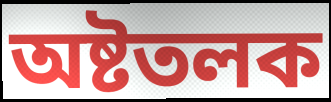
অষ্টতলক